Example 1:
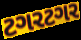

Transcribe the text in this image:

ટગરટગર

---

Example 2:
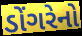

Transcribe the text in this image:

ડોંગરેનો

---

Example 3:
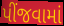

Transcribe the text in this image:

પીંજવામાં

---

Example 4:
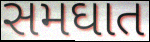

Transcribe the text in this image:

સમઘાત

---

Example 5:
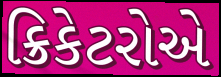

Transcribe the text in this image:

ક્રિકેટરોએ